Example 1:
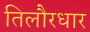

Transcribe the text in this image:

तिलौरधार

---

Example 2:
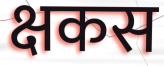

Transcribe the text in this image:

क्षकस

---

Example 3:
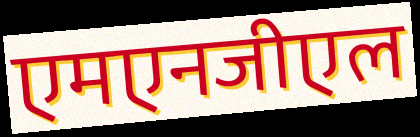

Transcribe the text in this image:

एमएनजीएल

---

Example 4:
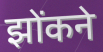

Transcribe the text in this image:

झोंकने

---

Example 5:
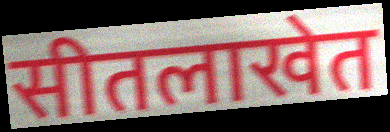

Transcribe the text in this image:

सीतलाखेत